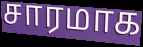
சாரமாக